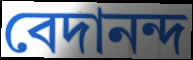
বেদানন্দ